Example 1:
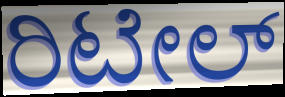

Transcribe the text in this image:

ರಿಟೇಲ್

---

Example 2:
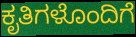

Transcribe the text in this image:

ಕೃತಿಗಳೊಂದಿಗೆ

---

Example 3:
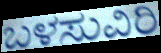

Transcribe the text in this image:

ಬಳಸುವಿರಿ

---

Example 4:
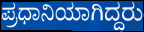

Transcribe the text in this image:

ಪ್ರಧಾನಿಯಾಗಿದ್ದರು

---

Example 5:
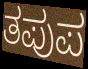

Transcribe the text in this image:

ತಪುಪ